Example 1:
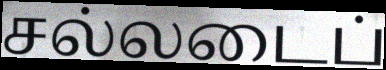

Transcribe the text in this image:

சல்லடைப்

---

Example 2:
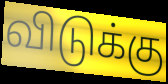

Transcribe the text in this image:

விடுக்கு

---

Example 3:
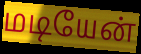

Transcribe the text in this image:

மடியேன்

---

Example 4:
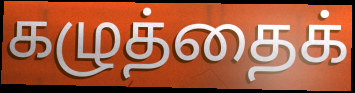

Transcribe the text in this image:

கழுத்தைக்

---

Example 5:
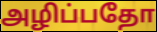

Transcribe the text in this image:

அழிப்பதோ